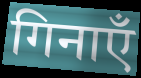
गिनाएँ